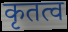
कृतत्व